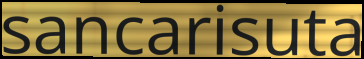
sancarisuta